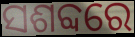
ସଶବ୍ଦରେ